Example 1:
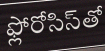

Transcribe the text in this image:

ఫ్లోరోసిస్‌తో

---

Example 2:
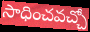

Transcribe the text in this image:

సాధించవచ్చో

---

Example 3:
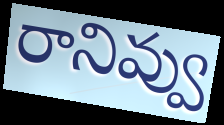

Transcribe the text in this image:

రానివ్వు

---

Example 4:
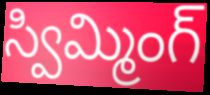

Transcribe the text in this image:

స్విమ్మింగ్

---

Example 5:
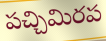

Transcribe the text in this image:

పచ్చిమిరప